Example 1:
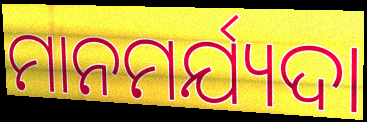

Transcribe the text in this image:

ମାନମର୍ଯ୍ୟଦା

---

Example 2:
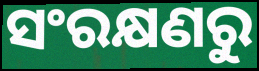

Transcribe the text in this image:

ସଂରକ୍ଷଣରୁ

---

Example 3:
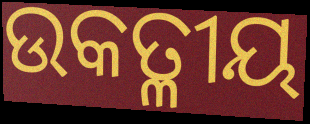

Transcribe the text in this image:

ଉକତ୍ଳୀୟ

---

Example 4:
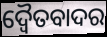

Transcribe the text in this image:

ଦ୍ୱୈତବାଦର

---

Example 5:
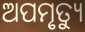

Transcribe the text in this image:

ଅପମୃତ୍ୟୁ